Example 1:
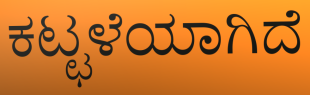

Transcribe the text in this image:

ಕಟ್ಟಳೆಯಾಗಿದೆ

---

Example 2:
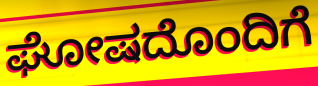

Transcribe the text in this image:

ಘೋಷದೊಂದಿಗೆ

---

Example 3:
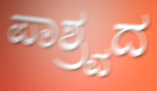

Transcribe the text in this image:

ಪಾಶ್ರ್ವದ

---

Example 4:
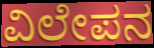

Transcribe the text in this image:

ವಿಲೇಪನ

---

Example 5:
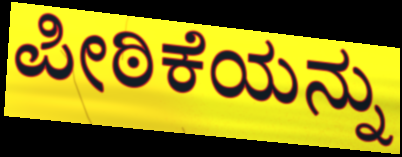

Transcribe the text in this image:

ಪೀಠಿಕೆಯನ್ನು